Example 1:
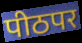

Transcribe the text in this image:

पीठपर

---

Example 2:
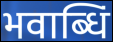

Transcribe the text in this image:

भवाब्धिं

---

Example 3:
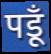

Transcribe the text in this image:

पडूँ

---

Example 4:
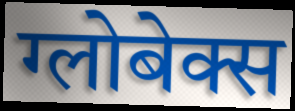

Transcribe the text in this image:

ग्लोबेक्स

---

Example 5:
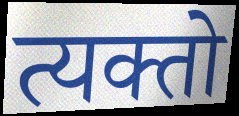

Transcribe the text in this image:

त्यक्तो